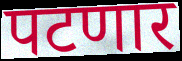
पटणार